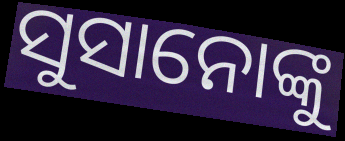
ସୁସାନୋଙ୍କୁ